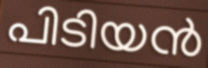
പിടിയൻ